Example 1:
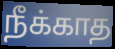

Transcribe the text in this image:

நீக்காத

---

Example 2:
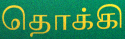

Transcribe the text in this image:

தொக்கி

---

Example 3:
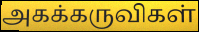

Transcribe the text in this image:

அகக்கருவிகள்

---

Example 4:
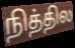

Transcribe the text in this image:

நித்தில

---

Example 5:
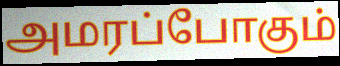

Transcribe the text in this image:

அமரப்போகும்